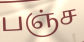
பஞ்ச